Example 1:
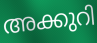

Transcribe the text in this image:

അക്കുറി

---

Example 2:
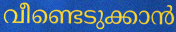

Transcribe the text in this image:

വീണ്ടെടുക്കാൻ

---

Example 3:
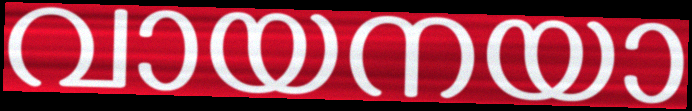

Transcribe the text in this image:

വായനയാ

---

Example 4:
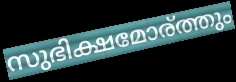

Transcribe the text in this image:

സുഭിക്ഷമോര്ത്തും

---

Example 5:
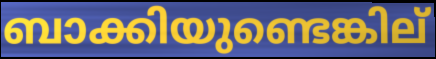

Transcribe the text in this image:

ബാക്കിയുണ്ടെങ്കില്